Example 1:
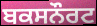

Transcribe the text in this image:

ਬਕਸਨੌਰਟ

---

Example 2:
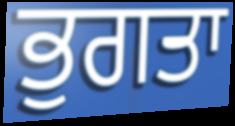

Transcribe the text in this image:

ਭੁਗਤਾ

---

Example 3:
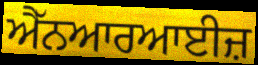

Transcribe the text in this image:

ਐੱਨਆਰਆਈਜ਼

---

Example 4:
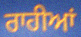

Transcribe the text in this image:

ਰਾਹੀਆਂ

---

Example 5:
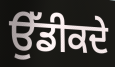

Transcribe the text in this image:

ਉੱਡੀਕਦੇ